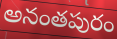
అనంతపురం